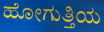
ಹೋಗುತ್ತಿಯ